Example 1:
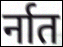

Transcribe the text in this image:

र्नात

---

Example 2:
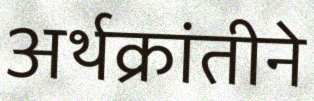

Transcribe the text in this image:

अर्थक्रांतीने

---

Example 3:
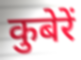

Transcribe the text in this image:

कुबेरें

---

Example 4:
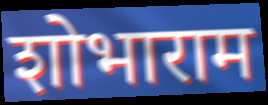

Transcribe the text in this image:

शोभाराम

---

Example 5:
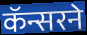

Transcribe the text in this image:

कॅन्सरने